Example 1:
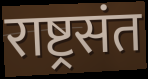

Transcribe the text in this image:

राष्ट्रसंत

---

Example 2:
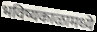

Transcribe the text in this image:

भविष्यकाळामध्ये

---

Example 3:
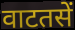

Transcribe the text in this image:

वाटतसें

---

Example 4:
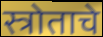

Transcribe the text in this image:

स्त्रोताचे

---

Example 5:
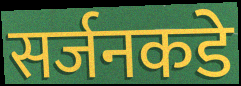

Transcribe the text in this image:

सर्जनकडे